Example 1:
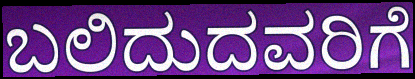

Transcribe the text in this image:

ಬಲಿದುದವರಿಗೆ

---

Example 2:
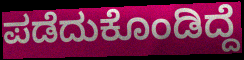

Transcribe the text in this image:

ಪಡೆದುಕೊಂಡಿದ್ದೆ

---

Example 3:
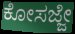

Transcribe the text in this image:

ಕೋಸಜ್ಜೇ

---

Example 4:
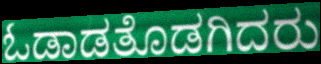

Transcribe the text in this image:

ಓಡಾಡತೊಡಗಿದರು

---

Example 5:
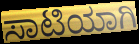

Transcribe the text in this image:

ಸಾಟಿಯಾಗಿ